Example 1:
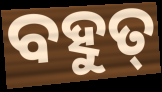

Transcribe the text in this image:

ବହୁତ୍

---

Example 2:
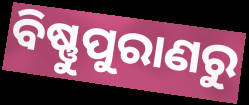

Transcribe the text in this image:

ବିଷ୍ଣୁପୁରାଣରୁ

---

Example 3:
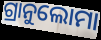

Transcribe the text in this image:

ଗ୍ରାନୁଲୋମା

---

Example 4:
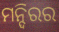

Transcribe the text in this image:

ମନ୍ଦିରର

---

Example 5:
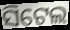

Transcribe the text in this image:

ସିଟେଲ